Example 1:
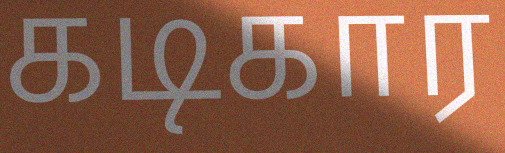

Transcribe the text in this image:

கடிகார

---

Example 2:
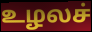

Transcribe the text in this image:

உழலச்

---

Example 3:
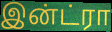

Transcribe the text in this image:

இன்ட்ரா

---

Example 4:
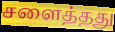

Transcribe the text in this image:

சளைத்தது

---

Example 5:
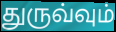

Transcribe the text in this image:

துருவ்வும்